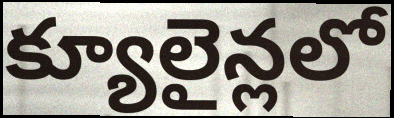
క్యూలైన్లలో